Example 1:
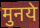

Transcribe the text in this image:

मुनये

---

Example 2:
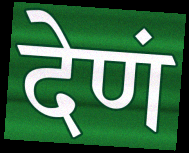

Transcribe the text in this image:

देणं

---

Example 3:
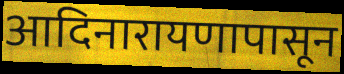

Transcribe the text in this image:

आदिनारायणापासून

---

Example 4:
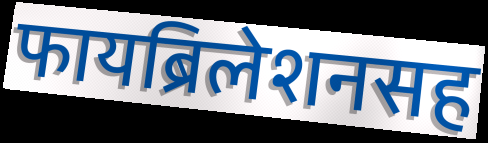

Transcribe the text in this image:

फायब्रिलेशनसह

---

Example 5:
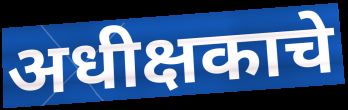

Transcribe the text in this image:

अधीक्षकाचे